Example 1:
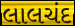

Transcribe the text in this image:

લાલચંદ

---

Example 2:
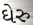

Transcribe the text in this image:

ઘેરુ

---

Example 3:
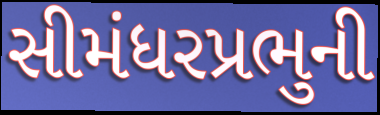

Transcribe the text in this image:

સીમંધરપ્રભુની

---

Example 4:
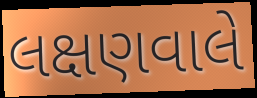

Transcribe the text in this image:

લક્ષણવાલે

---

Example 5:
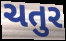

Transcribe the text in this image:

ચતુર